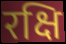
रक्षि